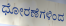
ಧೋರಣೆಗಳಿಂದ